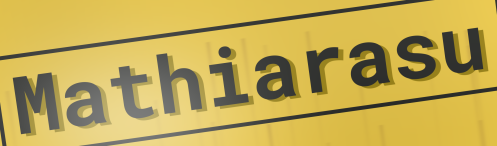
Mathiarasu